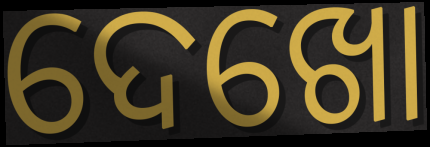
ଦେଖୋ